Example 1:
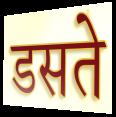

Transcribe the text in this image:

डसते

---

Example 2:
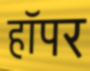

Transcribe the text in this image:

हॉपर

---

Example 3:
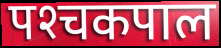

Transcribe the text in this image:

पश्चकपाल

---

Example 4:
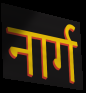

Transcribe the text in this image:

नार्ग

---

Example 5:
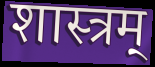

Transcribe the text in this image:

शास्त्रम्